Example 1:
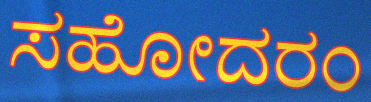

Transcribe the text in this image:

ಸಹೋದರಂ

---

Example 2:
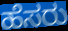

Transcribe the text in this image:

ಹೆಸರು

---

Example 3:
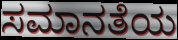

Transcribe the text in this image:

ಸಮಾನತೆಯ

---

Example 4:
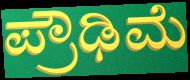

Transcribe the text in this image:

ಪ್ರೌಢಿಮೆ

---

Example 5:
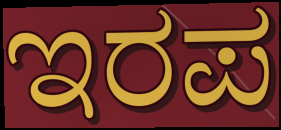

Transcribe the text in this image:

ಇರಪ